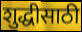
शुद्धीसाठी